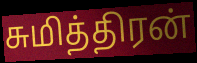
சுமித்திரன்